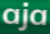
aja